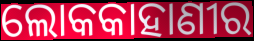
ଲୋକକାହାଣୀର